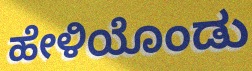
ಹೇಳಿಯೊಂಡು